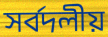
সর্বদলীয়